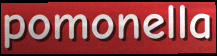
pomonella